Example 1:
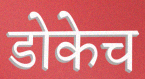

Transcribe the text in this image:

डोकेच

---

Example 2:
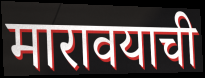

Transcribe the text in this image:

मारावयाची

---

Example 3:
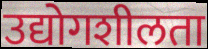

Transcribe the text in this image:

उद्योगशीलता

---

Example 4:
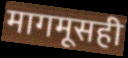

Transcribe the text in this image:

मागमूसही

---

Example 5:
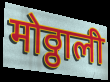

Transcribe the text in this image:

मोठ्ठाली